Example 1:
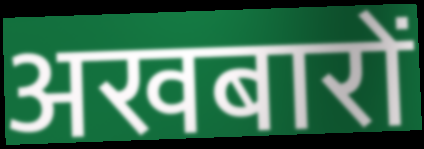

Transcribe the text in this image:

अखबारों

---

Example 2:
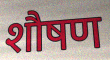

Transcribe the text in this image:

शौषण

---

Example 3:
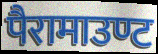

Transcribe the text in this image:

पैरामाउण्ट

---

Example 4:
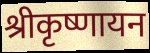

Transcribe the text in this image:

श्रीकृष्णायन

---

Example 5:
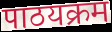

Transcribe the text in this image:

पाठयक्रम